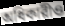
অধিকারীও